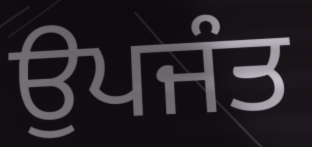
ਉਪਜੰਤ